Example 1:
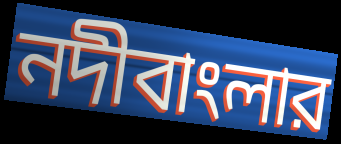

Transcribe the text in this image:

নদীবাংলার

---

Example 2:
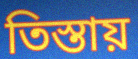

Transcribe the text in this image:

তিস্তায়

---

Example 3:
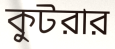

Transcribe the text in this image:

কুটরার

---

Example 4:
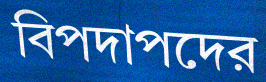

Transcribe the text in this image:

বিপদাপদের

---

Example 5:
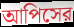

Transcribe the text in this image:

আপিসের